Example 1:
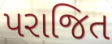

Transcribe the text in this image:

પરાજિત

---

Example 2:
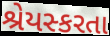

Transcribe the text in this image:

શ્રેયસ્કરતા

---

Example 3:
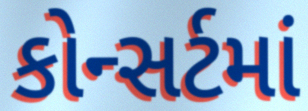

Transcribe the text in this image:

કોન્સર્ટમાં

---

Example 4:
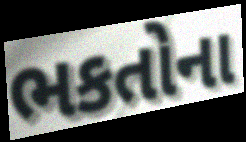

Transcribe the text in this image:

ભકતોના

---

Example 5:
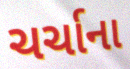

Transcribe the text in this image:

ચર્ચાના